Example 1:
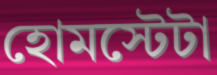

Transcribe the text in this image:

হোমস্টেটা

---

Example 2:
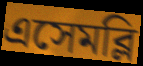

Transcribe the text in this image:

এসেমব্লি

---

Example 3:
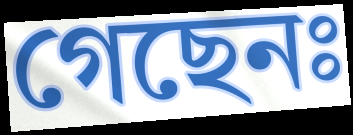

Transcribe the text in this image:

গেছেনঃ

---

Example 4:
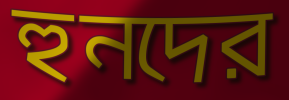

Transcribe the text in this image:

হুনদের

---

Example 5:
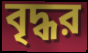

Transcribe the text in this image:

বৃদ্ধর